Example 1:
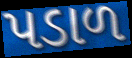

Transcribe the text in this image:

પડાળ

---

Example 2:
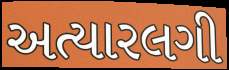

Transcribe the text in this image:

અત્યારલગી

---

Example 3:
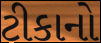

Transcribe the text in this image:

ટીકાનો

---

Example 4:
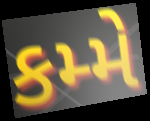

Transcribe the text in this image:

કમ્મે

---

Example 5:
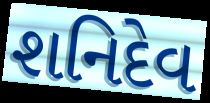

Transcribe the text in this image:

શનિદેવ